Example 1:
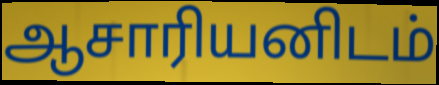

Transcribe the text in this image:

ஆசாரியனிடம்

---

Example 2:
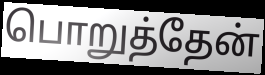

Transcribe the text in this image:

பொறுத்தேன்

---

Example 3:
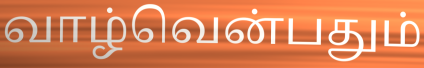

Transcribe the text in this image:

வாழ்வென்பதும்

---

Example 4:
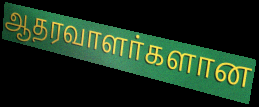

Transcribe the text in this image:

ஆதரவாளர்களான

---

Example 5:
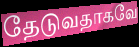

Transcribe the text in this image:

தேடுவதாகவே